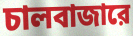
চালবাজারে